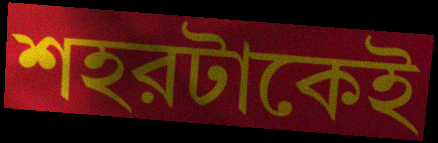
শহরটাকেই